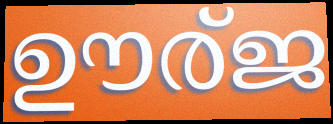
ഊര്ജ